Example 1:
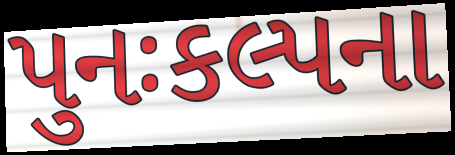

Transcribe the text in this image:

પુનઃકલ્પના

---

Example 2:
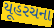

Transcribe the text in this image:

યૂહરચના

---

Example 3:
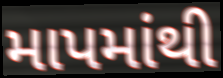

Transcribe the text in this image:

માપમાંથી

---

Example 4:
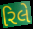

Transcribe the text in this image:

રિલે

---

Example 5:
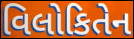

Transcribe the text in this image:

વિલોકિતેન